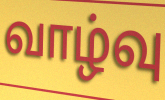
வாழ்வு